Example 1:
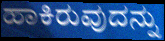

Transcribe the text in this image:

ಹಾಕಿರುವುದನ್ನು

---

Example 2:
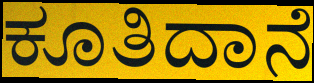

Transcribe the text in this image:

ಕೂತಿದಾನೆ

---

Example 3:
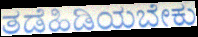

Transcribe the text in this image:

ತಡೆಹಿಡಿಯಬೇಕು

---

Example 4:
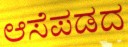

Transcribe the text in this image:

ಆಸೆಪಡದ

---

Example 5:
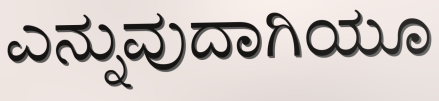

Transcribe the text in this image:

ಎನ್ನುವುದಾಗಿಯೂ